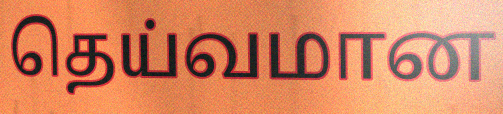
தெய்வமான